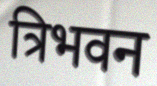
त्रिभवन